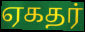
ஏகதர்